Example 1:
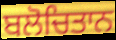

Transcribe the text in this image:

ਬਲੋਚਿਤਾਨ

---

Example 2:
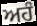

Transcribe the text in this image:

ਅਹੰ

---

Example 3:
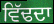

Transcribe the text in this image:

ਵਿੱਢਦਾ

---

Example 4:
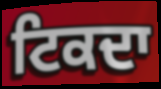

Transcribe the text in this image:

ਟਿਕਦਾ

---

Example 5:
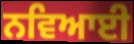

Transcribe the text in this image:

ਨਵਿਆਈ